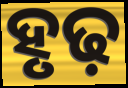
ହୃଢ଼